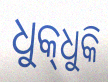
ଧୁକ୍‌ଧୁକି